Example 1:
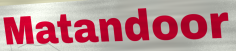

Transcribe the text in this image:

Matandoor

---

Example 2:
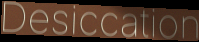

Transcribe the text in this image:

Desiccation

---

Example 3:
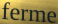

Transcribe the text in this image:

ferme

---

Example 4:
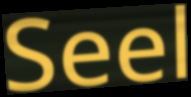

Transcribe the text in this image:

Seel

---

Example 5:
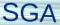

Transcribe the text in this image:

SGA